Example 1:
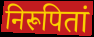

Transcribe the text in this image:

निरूपितां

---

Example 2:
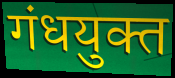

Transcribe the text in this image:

गंधयुक्‍त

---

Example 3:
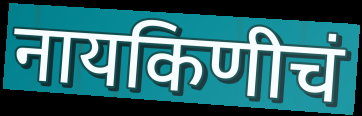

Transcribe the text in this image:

नायकिणीचं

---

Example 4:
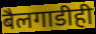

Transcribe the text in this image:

बैलगाडीही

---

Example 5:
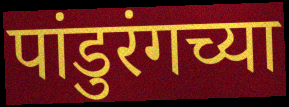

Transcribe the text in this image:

पांडुरंगच्या